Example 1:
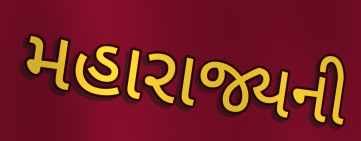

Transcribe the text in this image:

મહારાજ્યની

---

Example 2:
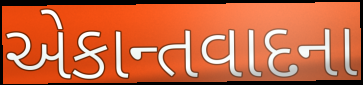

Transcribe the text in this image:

એકાન્તવાદના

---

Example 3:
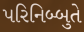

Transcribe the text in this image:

પરિનિબ્બુતે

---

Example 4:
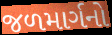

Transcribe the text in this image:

જળમાર્ગનો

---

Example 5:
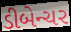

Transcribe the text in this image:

ડીબેન્ચર